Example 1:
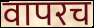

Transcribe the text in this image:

वापरच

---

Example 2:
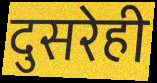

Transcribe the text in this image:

दुसरेही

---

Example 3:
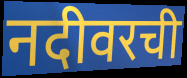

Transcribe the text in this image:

नदीवरची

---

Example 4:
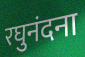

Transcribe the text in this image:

रघुनंदना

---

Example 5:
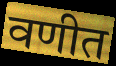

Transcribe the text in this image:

वणीत